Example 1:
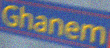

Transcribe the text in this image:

Ghanem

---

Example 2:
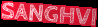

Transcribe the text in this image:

SANGHVI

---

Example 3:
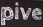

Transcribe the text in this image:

pive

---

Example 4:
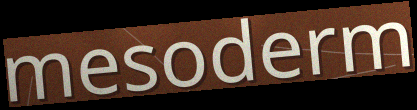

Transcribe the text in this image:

mesoderm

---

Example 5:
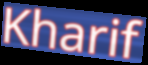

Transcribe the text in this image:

Kharif